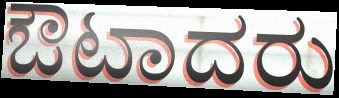
ಔಟಾದರು